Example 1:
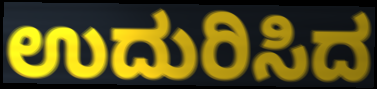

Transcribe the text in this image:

ಉದುರಿಸಿದ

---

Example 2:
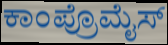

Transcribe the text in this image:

ಕಾಂಪ್ರೊಮೈಸ್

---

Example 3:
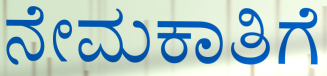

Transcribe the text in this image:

ನೇಮಕಾತಿಗೆ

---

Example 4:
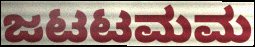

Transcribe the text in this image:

ಜಟಟಮಮ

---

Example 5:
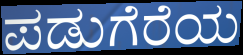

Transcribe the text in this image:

ಪಡುಗೆರೆಯ